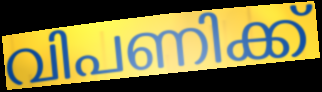
വിപണിക്ക്